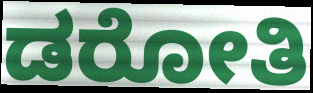
ಡರೋತಿ